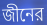
জীনের